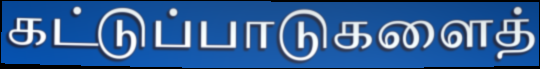
கட்டுப்பாடுகளைத்